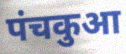
पंचकुआ